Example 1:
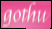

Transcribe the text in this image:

gothu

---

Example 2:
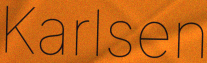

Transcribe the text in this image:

Karlsen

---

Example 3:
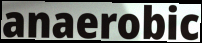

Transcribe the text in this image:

anaerobic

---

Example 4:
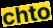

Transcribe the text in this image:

chto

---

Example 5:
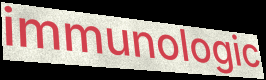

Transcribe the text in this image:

immunologic